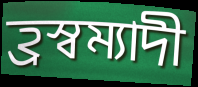
হ্ৰস্বম্যাদী